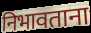
निभावताना